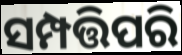
ସମ୍ପତ୍ତିପରି